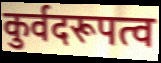
कुर्वदरूपत्व